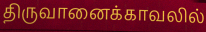
திருவானைக்காவலில்